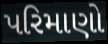
પરિમાણો